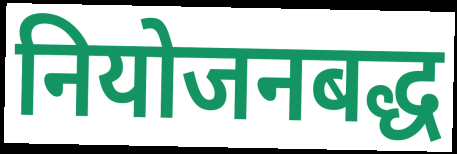
नियोजनबद्ध